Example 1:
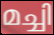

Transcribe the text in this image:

മച്ചി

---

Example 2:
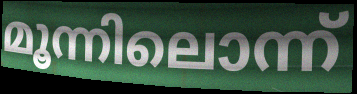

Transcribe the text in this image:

മൂന്നിലൊന്ന്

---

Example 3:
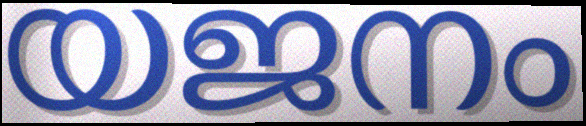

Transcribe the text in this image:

യജനം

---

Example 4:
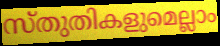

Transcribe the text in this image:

സ്തുതികളുമെല്ലാം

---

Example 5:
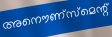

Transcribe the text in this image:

അനൌണ്സ്മെന്റ്